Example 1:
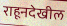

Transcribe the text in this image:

राहूनदेखील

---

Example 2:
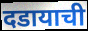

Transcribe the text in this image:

दडायाची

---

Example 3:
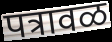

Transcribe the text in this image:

पत्रावळ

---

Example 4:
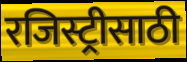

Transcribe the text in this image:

रजिस्ट्रीसाठी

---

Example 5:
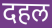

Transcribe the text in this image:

दहल